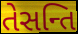
તેસન્તિ